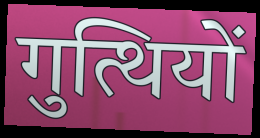
गुत्थियों